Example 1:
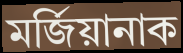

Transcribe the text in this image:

মৰ্জিয়ানাক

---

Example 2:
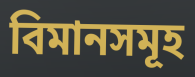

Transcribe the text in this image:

বিমানসমূহ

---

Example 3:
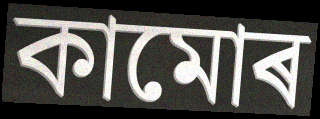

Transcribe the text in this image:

কামোৰ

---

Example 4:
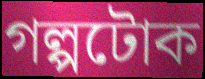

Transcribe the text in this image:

গল্পটোক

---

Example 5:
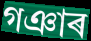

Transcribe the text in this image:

গঞাৰ